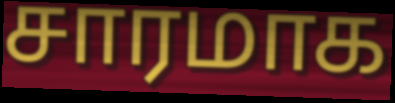
சாரமாக